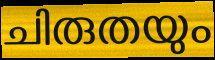
ചിരുതയും